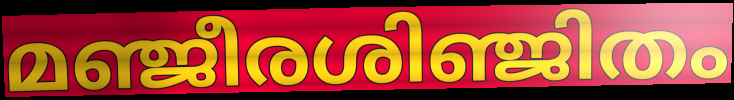
മഞ്ജീരശിഞ്ജിതം